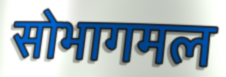
सोभागमल